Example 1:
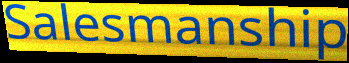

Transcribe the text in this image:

Salesmanship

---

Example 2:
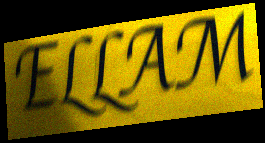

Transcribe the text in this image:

ELLAM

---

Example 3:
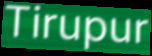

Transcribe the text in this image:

Tirupur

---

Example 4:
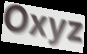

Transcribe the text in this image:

Oxyz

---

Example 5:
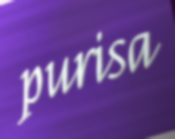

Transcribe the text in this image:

purisa